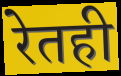
रेतही